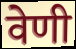
वेणी